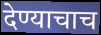
देण्याचाच